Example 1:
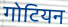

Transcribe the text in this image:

गोटियन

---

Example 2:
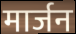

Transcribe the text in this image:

मार्जन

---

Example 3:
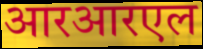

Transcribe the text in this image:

आरआरएल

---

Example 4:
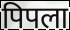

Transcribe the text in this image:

पिपला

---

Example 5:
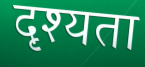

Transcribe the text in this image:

दृश्यता